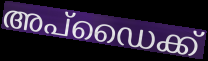
അപ്ഡൈക്ക്